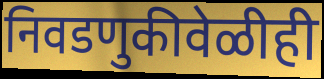
निवडणुकीवेळीही